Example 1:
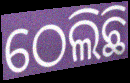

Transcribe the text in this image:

ଠେଲିଛି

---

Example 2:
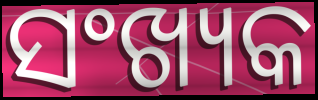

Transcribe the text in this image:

ସଂଖ୍ୟକ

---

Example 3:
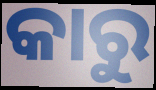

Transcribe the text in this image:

କାରୁ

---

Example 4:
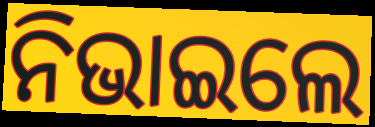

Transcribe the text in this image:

ନିଭାଇଲେ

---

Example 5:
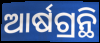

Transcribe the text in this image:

ଆର୍ଷଗ୍ରନ୍ଥି